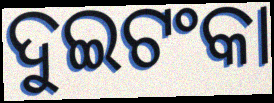
ଦୁଇଟଂକା